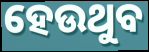
ହେଉଥୁବ